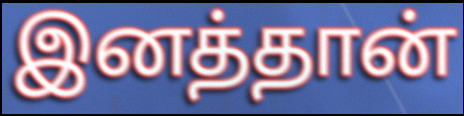
இனத்தான்